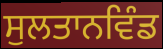
ਸੁਲਤਾਨਵਿੰਡ